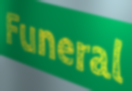
Funeral